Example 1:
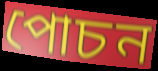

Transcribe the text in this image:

পোচন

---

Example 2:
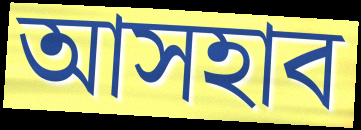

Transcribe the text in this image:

আসহাব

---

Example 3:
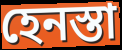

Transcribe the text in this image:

হেনস্তা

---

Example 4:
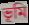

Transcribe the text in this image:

ভূমি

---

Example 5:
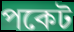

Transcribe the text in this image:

পকেট